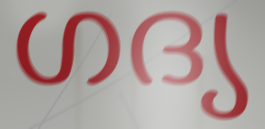
ഗദ്യ